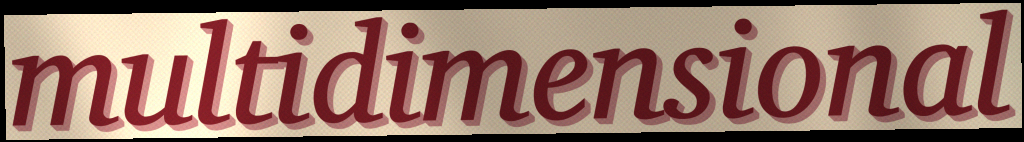
multidimensional